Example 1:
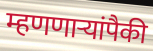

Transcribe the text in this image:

म्हणणाऱ्यांपैकी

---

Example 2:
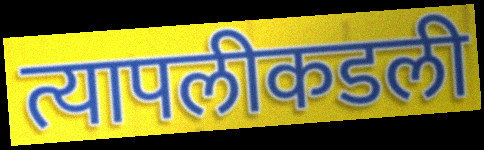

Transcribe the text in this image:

त्यापलीकडली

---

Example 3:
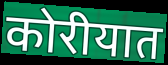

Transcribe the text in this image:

कोरीयात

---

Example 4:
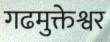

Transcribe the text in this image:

गढमुक्तेश्वर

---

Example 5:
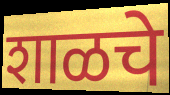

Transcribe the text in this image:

शाळचे